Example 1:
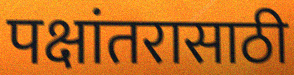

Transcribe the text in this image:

पक्षांतरासाठी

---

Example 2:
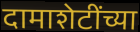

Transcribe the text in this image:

दामाशेटींच्या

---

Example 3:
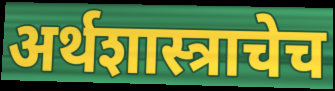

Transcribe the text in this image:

अर्थशास्त्राचेच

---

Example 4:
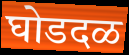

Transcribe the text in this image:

घोडदळ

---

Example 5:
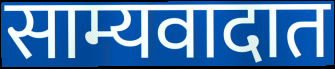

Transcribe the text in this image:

साम्यवादात